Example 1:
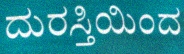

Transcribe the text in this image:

ದುರಸ್ತಿಯಿಂದ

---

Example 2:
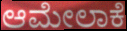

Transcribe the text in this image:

ಆಮೇಲಾಕೆ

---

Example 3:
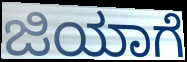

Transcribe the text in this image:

ಜಿಯಾಗೆ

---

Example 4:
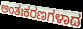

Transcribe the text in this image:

ಅಂತಃಕರಣಗಳಾದ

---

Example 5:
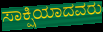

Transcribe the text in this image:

ಸಾಕ್ಷಿಯಾದವರು